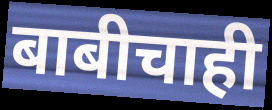
बाबीचाही